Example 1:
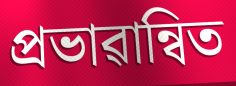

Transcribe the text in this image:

প্ৰভাৱান্বিত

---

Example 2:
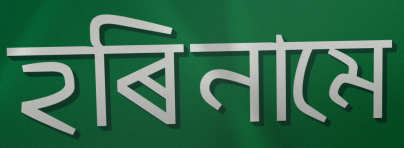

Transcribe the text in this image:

হৰিনামে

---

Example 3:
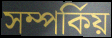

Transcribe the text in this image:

সম্পৰ্কিয়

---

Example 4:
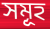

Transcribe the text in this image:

সমূহ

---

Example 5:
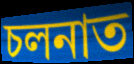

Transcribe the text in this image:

চলনাত